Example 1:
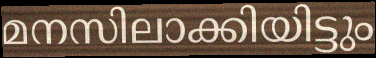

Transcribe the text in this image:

മനസിലാക്കിയിട്ടും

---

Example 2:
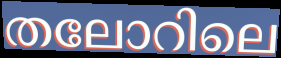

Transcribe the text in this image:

തലോറിലെ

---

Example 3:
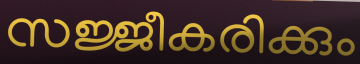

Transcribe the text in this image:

സജ്ജീകരിക്കും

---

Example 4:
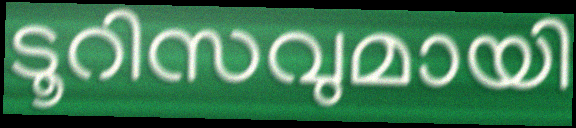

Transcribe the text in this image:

ടൂറിസവുമായി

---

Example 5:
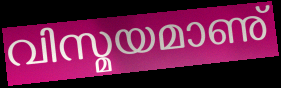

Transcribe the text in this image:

വിസ്മയമാണു്